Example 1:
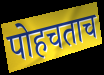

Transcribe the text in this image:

पोहचताच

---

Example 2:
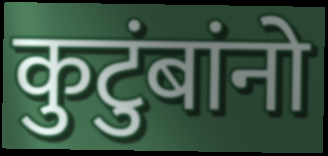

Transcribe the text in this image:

कुटुंबांनो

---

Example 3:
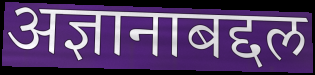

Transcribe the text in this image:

अज्ञानाबद्दल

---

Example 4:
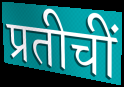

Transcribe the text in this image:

प्रतीचीं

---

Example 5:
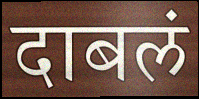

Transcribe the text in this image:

दाबलं